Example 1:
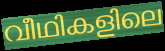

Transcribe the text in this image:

വീഥികളിലെ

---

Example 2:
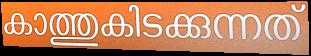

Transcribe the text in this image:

കാത്തുകിടക്കുന്നത്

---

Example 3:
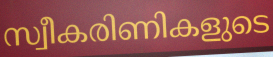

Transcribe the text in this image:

സ്വീകരിണികളുടെ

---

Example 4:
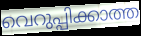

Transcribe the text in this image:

വെറുപ്പിക്കാത്ത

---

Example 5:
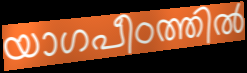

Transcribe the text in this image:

യാഗപീഠത്തിൽ